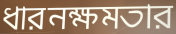
ধারনক্ষমতার